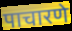
पाचारणे